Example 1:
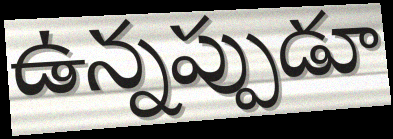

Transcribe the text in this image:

ఉన్నప్పుడూ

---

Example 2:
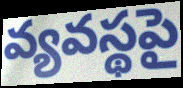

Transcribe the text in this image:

వ్యవస్థపై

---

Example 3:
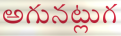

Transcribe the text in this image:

అగునట్లుగ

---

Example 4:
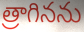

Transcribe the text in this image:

త్రాగినను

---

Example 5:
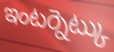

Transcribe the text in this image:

ఇంటర్నెట్కు